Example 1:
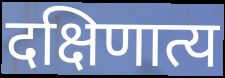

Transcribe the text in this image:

दक्षिणात्य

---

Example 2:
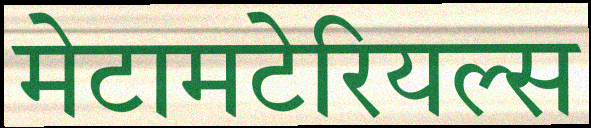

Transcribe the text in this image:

मेटामटेरियल्स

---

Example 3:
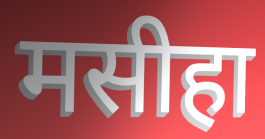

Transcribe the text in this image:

मसीहा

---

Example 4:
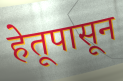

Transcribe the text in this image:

हेतूपासून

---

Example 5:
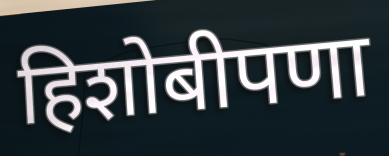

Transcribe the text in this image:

हिशोबीपणा